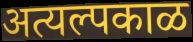
अत्यल्पकाळ